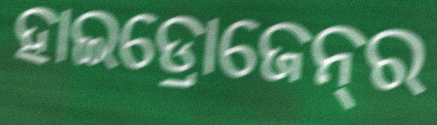
ହାଇଡ୍ରୋଜେନ୍‌ର